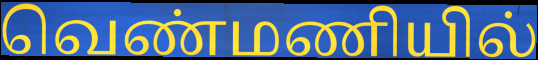
வெண்மணியில்